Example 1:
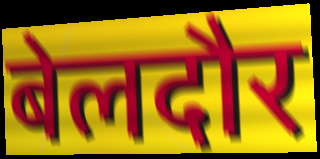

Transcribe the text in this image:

बेलदौर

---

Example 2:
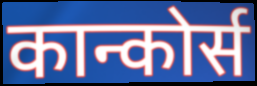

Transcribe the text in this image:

कान्कोर्स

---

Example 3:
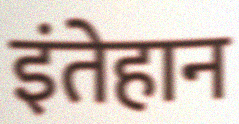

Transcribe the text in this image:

इंतेहान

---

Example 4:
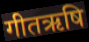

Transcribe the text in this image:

गीतऋषि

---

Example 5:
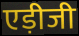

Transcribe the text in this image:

एड़ीजी